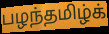
பழந்தமிழ்க்